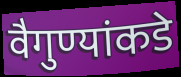
वैगुण्यांकडे